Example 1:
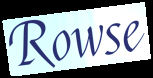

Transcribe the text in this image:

Rowse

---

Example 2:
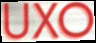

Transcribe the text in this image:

UXO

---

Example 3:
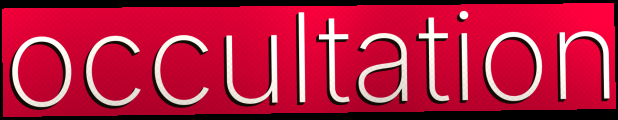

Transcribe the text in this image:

occultation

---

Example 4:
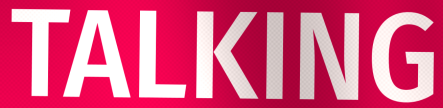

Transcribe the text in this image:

TALKING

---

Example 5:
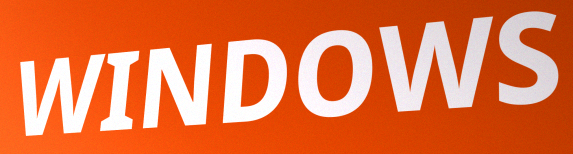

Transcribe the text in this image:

WINDOWS